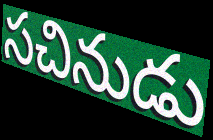
సచినుడు